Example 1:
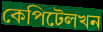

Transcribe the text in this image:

কেপিটেলখন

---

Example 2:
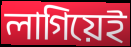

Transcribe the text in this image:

লাগিয়েই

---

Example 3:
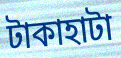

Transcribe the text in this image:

টাকাহাটা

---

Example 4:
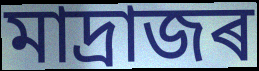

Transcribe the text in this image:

মাদ্ৰাজৰ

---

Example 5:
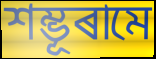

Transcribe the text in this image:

শম্ভূৰামে